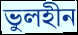
ভুলহীন